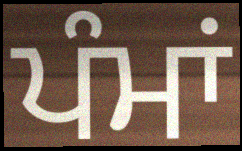
ਪੰਮਾਂ